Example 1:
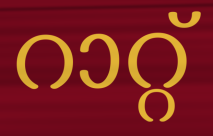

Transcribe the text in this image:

റാറ്റ്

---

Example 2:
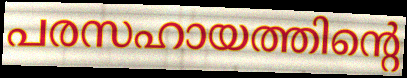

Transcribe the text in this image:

പരസഹായത്തിന്റെ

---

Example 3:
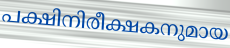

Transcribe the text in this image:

പക്ഷിനിരീക്ഷകനുമായ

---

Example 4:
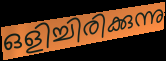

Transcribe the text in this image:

ഒളിച്ചിരിക്കുന്നു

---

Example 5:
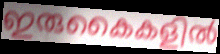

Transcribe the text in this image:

ഇരുകൈകളിൽ